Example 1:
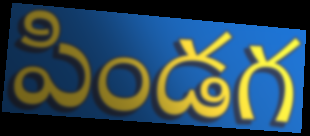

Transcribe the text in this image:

పిండగ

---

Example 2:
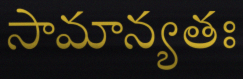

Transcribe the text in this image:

సామాన్యతః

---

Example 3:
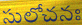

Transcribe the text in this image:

సులోచనః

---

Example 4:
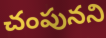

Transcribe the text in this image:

చంపునని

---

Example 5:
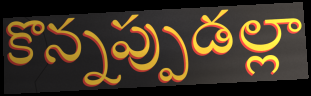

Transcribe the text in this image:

కొన్నప్పుడల్లా